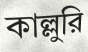
কাল্লুরি